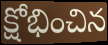
క్షోభించిన